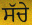
ਸੱਚੇ